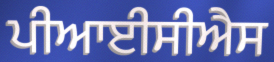
ਪੀਆਈਸੀਐਸ